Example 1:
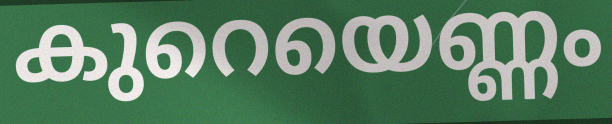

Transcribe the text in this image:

കുറെയെണ്ണം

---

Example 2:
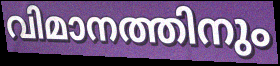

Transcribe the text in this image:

വിമാനത്തിനും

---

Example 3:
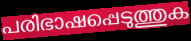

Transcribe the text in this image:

പരിഭാഷപ്പെടുത്തുക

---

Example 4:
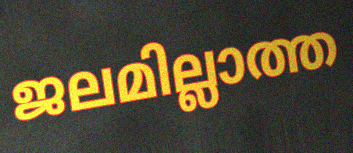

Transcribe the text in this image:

ജലമില്ലാത്ത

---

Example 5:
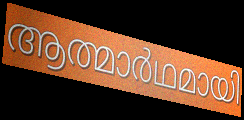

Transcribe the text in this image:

ആത്മാർഥമായി